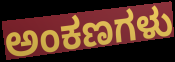
ಅಂಕಣಗಳು